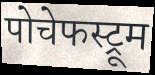
पोचेफस्ट्रूम